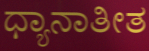
ಧ್ಯಾನಾತೀತ